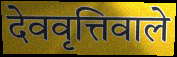
देववृत्तिवाले